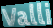
Valli